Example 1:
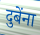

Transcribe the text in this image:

दुबेंना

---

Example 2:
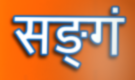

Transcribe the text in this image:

सङ्गं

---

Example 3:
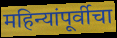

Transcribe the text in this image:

महिन्यांपूर्वीचा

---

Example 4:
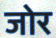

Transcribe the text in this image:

जोर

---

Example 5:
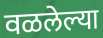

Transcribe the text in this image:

वळलेल्या